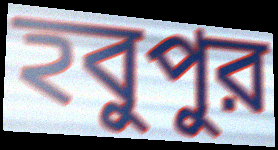
হবুপুর